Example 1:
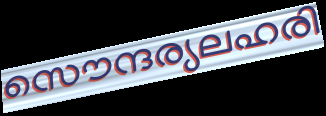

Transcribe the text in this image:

സൌന്ദര്യലഹരി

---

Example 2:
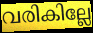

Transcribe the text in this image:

വരികില്ലേ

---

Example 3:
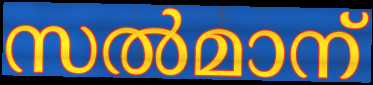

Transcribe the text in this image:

സൽമാന്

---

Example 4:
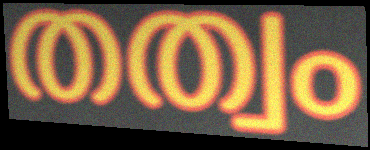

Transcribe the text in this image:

തത്വം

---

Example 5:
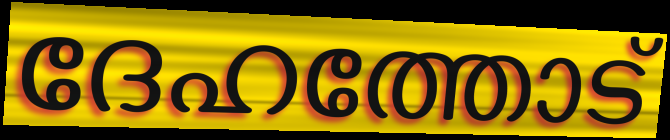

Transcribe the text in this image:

ദേഹത്തോട്